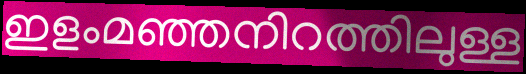
ഇളംമഞ്ഞനിറത്തിലുള്ള